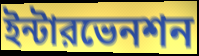
ইন্টারভেনশন